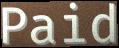
Paid